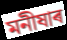
মনীষাৰ